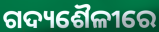
ଗଦ୍ୟଶୈଳୀରେ